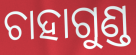
ଚାହାଗୁଣ୍ଡ